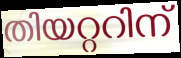
തിയറ്ററിന്